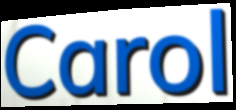
Carol